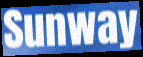
Sunway